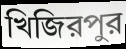
খিজিরপুর